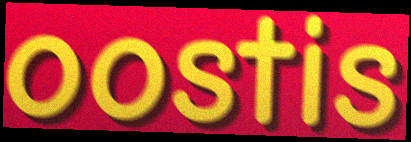
oostis